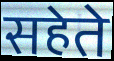
सहेते